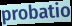
probatio